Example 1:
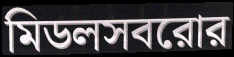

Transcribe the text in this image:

মিডলসবরোর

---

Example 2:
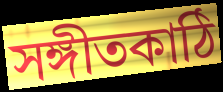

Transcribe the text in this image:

সঙ্গীতকাঠি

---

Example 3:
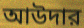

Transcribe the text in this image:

আউদার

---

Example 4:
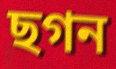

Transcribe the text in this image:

ছগন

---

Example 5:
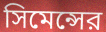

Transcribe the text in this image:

সিমেন্সের